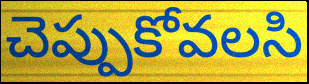
చెప్పుకోవలసి